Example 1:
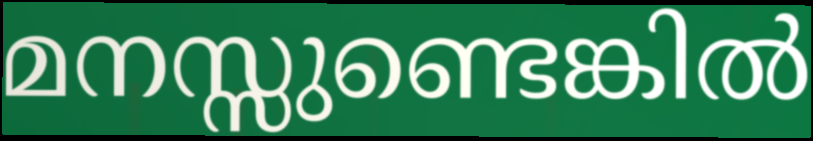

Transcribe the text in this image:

മനസ്സുണ്ടെങ്കിൽ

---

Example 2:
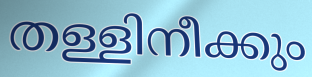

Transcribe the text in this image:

തള്ളിനീക്കും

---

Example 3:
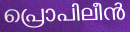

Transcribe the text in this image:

പ്രൊപിലീൻ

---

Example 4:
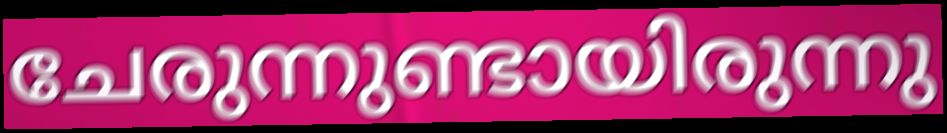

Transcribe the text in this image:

ചേരുന്നുണ്ടായിരുന്നു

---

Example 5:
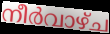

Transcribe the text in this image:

നീർവാഴ്ച